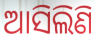
ଆସିଲିଣି